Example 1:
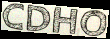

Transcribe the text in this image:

CDHO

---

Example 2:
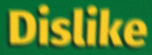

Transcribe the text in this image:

Dislike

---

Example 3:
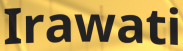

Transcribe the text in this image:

Irawati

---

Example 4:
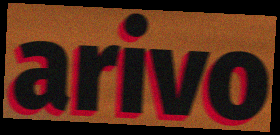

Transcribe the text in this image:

arivo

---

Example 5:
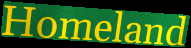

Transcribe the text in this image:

Homeland